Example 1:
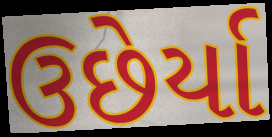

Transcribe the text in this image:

ઉછેર્યા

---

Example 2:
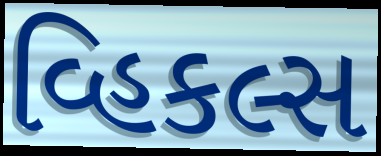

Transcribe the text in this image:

વ્હિકલ્સ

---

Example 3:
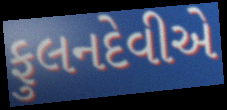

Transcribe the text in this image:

ફુલનદેવીએ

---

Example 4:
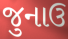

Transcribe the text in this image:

જુનાઉ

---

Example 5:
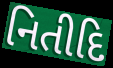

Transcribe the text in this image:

નિતીદિ